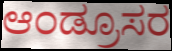
ಆಂಡ್ರೂಸರ